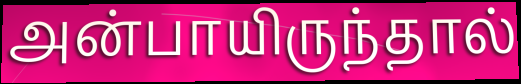
அன்பாயிருந்தால்